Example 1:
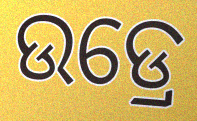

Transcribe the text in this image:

ଉଡ୍ରେ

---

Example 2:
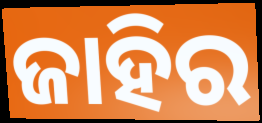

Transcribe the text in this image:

ଜାହିର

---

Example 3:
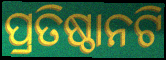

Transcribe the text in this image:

ପ୍ରତିଷ୍ଠାନଟି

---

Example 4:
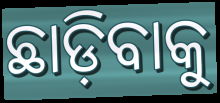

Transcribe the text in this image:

ଛାଡ଼ିବାକୁ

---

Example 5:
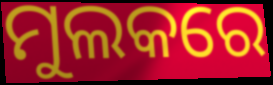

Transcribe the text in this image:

ମୁଲକରେ